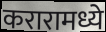
करारामध्ये